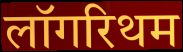
लॉगरिथम